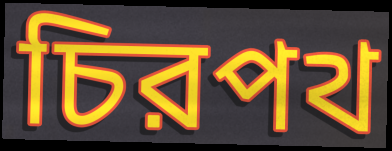
চিরপথ